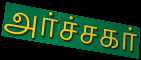
அர்ச்சகர்